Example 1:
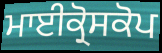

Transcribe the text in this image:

ਮਾਈਕ੍ਰੋਸਕੋਪ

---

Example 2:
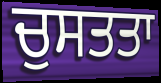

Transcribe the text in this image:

ਚੁਸਤਤਾ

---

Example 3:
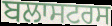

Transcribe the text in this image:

ਬਲਾਸਟਰਸ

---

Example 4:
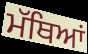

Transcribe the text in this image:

ਮੱਥਿਆਂ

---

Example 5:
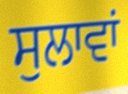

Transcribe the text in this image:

ਸੁਲਾਵਾਂ